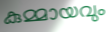
കുമ്മായവും